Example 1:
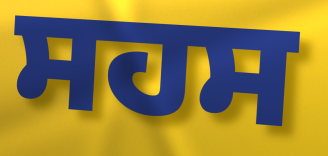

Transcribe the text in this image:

ਸਹਸ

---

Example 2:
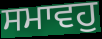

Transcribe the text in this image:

ਸਮਾਵਹੁ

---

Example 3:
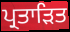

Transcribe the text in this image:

ਪ੍ਰਤਾੜਿਤ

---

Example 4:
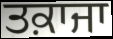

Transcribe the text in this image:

ਤਕ਼ਾਜਾ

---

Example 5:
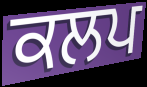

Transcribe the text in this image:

ਕਲਪ